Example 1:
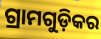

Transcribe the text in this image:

ଗ୍ରାମଗୁଡ଼ିକର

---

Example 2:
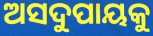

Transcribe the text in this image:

ଅସଦୁପାୟକୁ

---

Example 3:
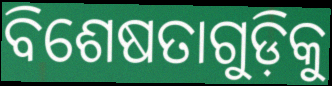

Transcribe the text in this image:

ବିଶେଷତାଗୁଡ଼ିକୁ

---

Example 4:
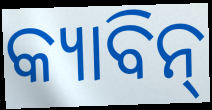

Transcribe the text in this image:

କ୍ୟାବିନ୍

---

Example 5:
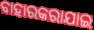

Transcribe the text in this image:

ବାହାରକରାଯାଇ